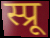
स्प्रू